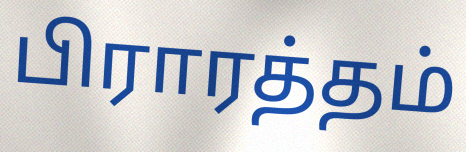
பிராரத்தம்